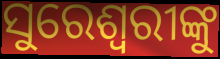
ସୁରେଶ୍ୱରୀଙ୍କୁ